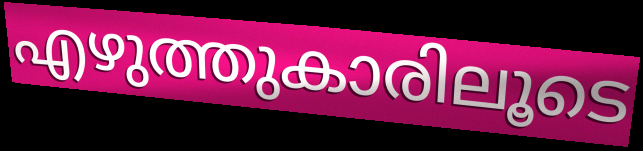
എഴുത്തുകാരിലൂടെ